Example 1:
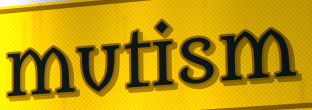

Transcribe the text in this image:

mutism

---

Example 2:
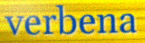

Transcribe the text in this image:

verbena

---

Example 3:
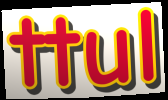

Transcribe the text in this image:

ttul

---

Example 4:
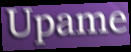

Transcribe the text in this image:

Upame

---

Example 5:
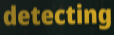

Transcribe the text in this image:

detecting